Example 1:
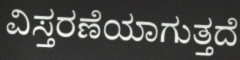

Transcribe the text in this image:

ವಿಸ್ತರಣೆಯಾಗುತ್ತದೆ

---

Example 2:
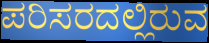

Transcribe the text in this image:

ಪರಿಸರದಲ್ಲಿರುವ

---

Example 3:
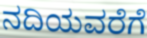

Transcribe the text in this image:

ನದಿಯವರೆಗೆ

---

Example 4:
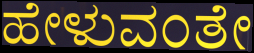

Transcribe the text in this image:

ಹೇಳುವಂತೇ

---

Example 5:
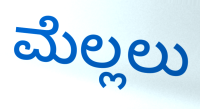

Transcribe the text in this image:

ಮೆಲ್ಲಲು